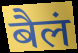
बैलं